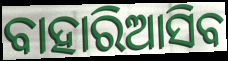
ବାହାରିଆସିବ